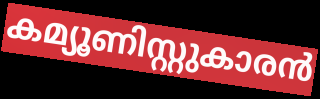
കമ്യൂണിസ്റ്റുകാരൻ